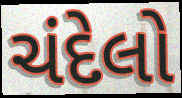
ચંદેલો